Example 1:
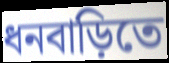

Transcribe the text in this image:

ধনবাড়িতে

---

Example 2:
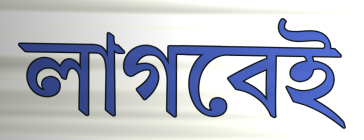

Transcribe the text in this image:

লাগবেই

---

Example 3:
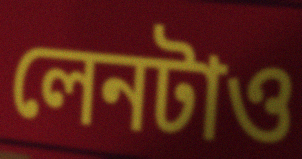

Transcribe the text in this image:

লেনটাও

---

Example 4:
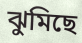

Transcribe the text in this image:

ঝুমিছে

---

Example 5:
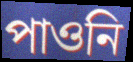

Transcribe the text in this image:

পাওনি